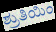
ಶ್ರುತಿಯಿಂ